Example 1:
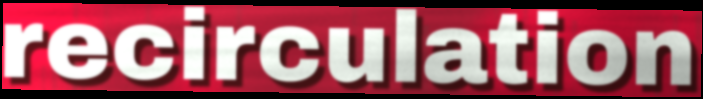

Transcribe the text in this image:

recirculation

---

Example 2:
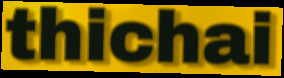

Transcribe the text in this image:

thichai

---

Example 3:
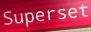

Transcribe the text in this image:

Superset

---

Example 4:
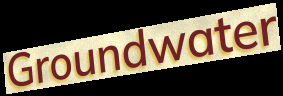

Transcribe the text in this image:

Groundwater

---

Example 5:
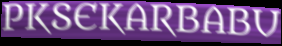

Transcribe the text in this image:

PKSEKARBABU